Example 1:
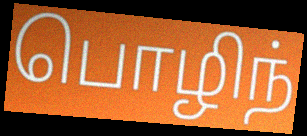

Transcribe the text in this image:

பொழிந்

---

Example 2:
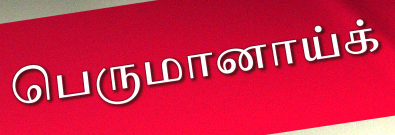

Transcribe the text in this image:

பெருமானாய்க்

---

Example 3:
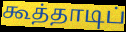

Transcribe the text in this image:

கூத்தாடிப்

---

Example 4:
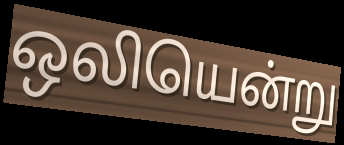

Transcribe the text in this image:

ஒலியென்று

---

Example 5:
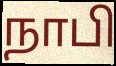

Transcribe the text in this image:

நாபி